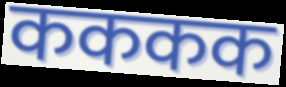
कककक